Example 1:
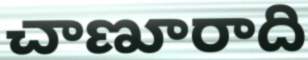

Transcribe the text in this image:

చాణూరాది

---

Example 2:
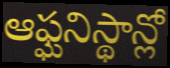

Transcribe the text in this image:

ఆఫ్ఘనిస్థాన్లో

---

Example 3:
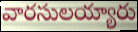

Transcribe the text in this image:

వారసులయ్యారు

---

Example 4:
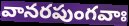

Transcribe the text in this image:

వానరపుంగవాః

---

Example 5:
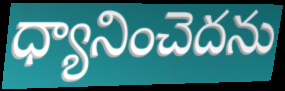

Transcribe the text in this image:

ధ్యానించెదను